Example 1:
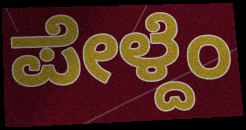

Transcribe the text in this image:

ಪೇಳ್ದೆಂ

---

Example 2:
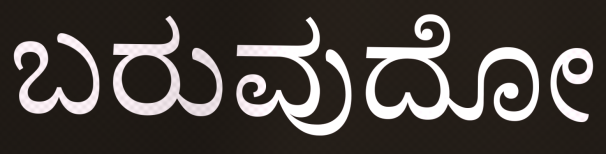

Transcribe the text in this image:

ಬರುವುದೋ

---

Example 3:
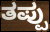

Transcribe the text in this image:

ತಪ್ಪು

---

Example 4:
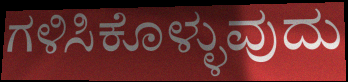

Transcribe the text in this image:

ಗಳಿಸಿಕೊಳ್ಳುವುದು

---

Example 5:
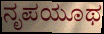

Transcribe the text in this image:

ನೃಪಯೂಥ